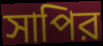
সাপির